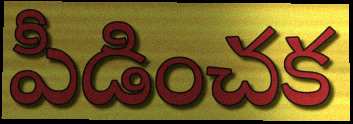
పీడించక